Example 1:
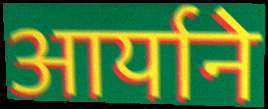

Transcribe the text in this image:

आर्याने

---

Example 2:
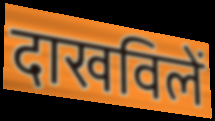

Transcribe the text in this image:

दाखविलें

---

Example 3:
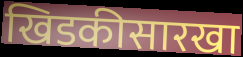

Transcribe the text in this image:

खिडकीसारखा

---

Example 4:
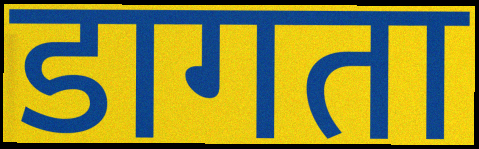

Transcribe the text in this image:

डागता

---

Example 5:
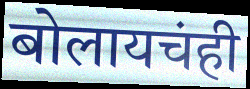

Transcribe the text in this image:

बोलायचंही